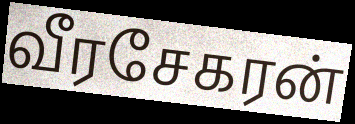
வீரசேகரன்